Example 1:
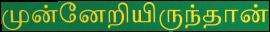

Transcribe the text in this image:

முன்னேறியிருந்தான்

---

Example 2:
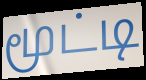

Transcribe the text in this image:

மூட்டி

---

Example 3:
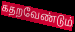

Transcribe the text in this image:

கதறவேண்டும்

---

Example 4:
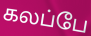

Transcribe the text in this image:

கலப்பே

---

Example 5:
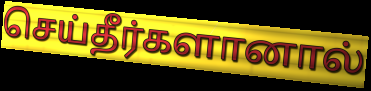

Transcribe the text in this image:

செய்தீர்களானால்